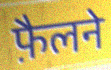
फ़ैलने